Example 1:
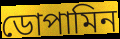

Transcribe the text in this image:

ডোপামিন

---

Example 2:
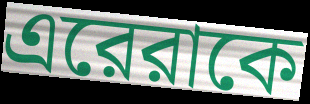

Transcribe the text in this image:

এরেরাকে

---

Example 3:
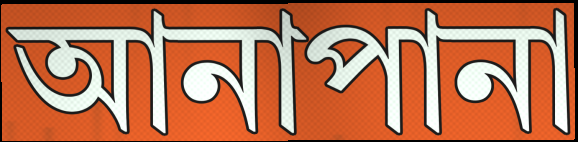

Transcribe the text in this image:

আনাপানা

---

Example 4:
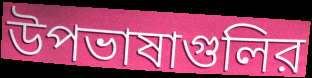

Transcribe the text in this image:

উপভাষাগুলির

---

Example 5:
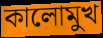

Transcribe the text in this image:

কালোমুখ